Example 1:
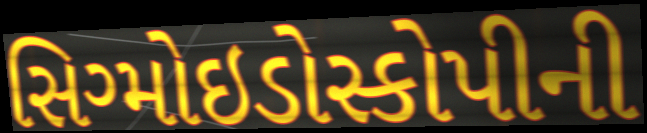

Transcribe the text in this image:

સિગ્મોઇડોસ્કોપીની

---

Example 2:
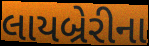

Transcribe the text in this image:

લાયબ્રેરીના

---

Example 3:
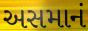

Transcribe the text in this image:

અસમાનં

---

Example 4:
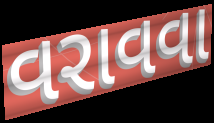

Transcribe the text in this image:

વરાવવા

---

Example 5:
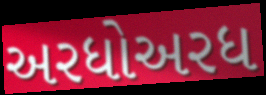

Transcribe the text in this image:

અરધોઅરધ